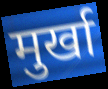
मुर्खा